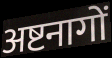
अष्टनागों